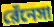
রেঁনেসা